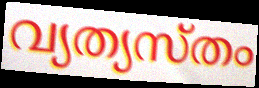
വ്യത്യസ്തം